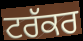
ਟਰੱਕਰ